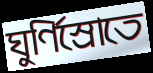
ঘুর্ণিস্রোতে